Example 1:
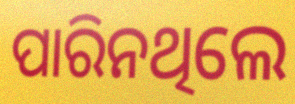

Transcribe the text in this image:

ପାରିନଥିଲେ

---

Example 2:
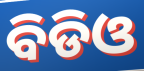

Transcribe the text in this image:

ବିଡିଓ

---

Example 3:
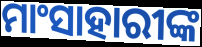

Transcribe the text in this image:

ମାଂସାହାରୀଙ୍କ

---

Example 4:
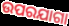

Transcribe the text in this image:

ଉପରଯାଗା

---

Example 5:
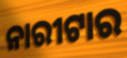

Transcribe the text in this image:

ନାରୀଟାର